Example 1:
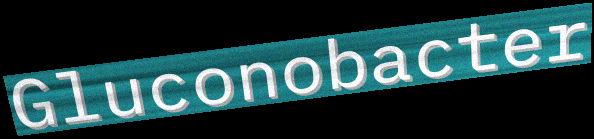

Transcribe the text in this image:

Gluconobacter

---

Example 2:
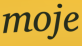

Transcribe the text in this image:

moje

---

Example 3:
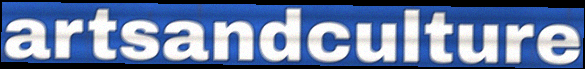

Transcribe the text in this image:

artsandculture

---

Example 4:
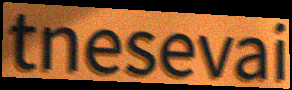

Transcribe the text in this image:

tnesevai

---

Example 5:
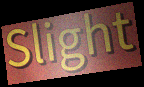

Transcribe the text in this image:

Slight